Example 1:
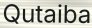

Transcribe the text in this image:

Qutaiba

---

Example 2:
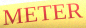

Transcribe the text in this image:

METER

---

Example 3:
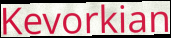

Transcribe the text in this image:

Kevorkian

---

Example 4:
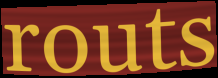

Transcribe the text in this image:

routs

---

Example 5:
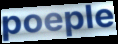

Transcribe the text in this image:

poeple